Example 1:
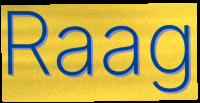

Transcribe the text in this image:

Raag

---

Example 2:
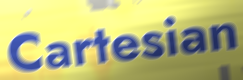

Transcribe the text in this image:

Cartesian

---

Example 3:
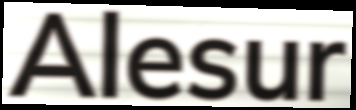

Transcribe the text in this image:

Alesur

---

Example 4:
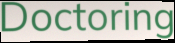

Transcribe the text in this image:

Doctoring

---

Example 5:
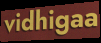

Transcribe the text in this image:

vidhigaa